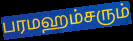
பரமஹம்சரும்